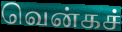
வென்கச்